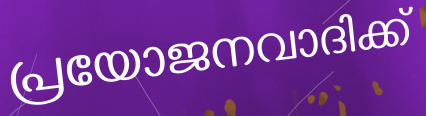
പ്രയോജനവാദിക്ക്